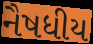
નૈષધીય